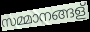
സമ്മാനങ്ങള്